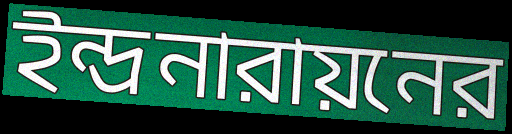
ইন্দ্রনারায়নের